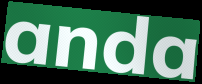
anda